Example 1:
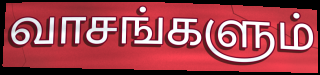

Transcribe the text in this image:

வாசங்களும்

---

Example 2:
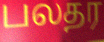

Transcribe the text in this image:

பலதர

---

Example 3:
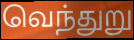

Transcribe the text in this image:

வெந்துறு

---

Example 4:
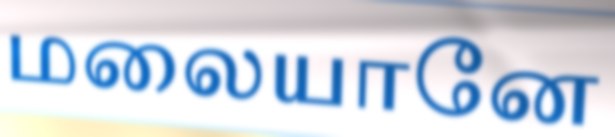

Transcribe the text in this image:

மலையானே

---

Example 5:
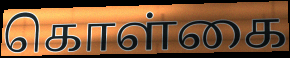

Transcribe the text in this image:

கொள்கை